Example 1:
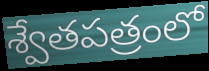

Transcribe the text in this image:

శ్వేతపత్రంలో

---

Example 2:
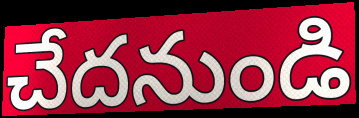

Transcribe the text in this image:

చేదనుండి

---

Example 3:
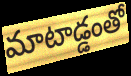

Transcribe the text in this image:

మాటాడ్డంతో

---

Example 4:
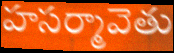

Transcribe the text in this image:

హసర్మావెతు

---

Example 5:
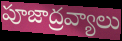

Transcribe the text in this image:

పూజాద్రవ్యాలు